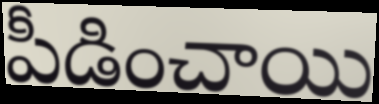
పీడించాయి